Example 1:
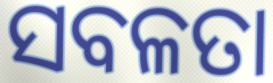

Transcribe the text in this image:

ସବଳତା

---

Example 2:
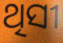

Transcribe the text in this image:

ଥିସୀ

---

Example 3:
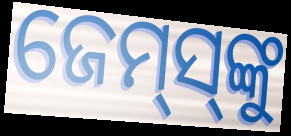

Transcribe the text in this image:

ଜେମ୍‌ସ୍‌ଙ୍କୁ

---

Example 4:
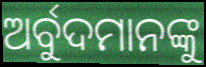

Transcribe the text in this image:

ଅର୍ବୁଦମାନଙ୍କୁ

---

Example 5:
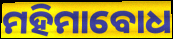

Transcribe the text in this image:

ମହିମାବୋଧ